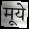
मूये